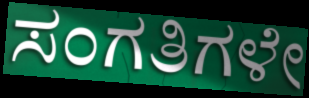
ಸಂಗತಿಗಳೇ